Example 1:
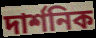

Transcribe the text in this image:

দার্শনিক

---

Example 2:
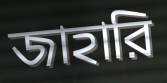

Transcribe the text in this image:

জাহারি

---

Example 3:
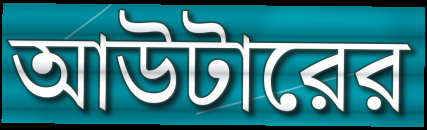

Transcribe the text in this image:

আউটারের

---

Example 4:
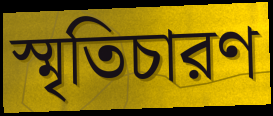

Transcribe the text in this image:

স্মৃতিচারণ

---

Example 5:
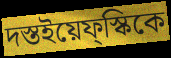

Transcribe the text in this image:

দস্তইয়েফ্স্কিকে